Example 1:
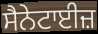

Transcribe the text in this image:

ਸੈਨੇਟਾਈਜ਼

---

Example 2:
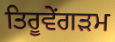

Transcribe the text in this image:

ਤਿਰੂਵੇਂਗੜਮ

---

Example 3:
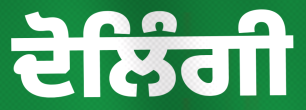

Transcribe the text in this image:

ਦੋਲਿੰਗੀ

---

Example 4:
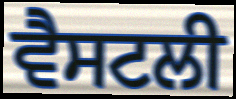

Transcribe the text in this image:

ਵੈਸਟਲੀ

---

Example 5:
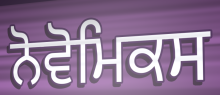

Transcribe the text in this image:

ਨੋਵੋਮਿਕਸ